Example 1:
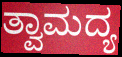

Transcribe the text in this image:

ತ್ವಾಮದ್ಯ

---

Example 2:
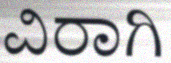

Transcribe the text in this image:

ವಿರಾಗಿ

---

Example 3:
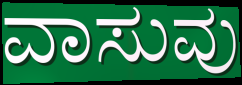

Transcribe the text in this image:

ವಾಸುವು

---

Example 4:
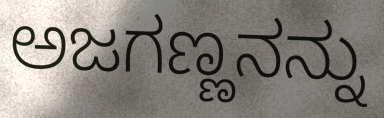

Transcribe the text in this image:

ಅಜಗಣ್ಣನನ್ನು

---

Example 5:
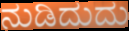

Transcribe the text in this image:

ನುಡಿದುದು